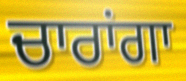
ਚਾਰਾਂਗਾ